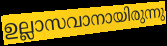
ഉല്ലാസവാനായിരുന്നു